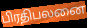
பிரதிபலனை